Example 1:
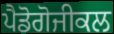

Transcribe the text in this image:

ਪੈਡੋਗੋਜੀਕਲ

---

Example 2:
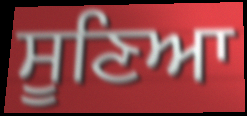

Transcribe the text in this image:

ਸੂਣਿਆ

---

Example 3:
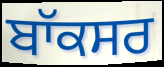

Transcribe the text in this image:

ਬਾੱਕਸਰ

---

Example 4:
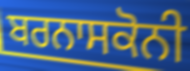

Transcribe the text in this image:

ਬਰਨਾਸਕੋਨੀ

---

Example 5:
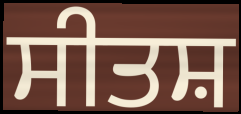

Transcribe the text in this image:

ਸੀਤਸ਼